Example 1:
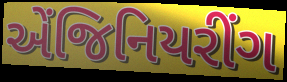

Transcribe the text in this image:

એંજિનિયરીંગ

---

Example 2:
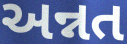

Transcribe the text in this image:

અન્નત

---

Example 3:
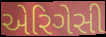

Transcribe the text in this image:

એરિગેસી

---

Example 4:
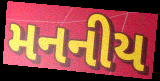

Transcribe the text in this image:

મનનીય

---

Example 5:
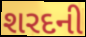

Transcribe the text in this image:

શરદની